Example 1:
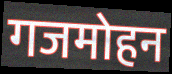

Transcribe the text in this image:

गजमोहन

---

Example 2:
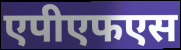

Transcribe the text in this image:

एपीएफएस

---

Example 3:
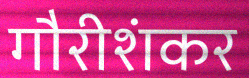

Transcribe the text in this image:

गौरीशंकर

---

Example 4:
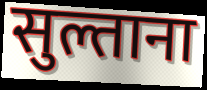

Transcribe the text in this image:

सुल्ताना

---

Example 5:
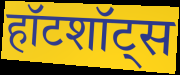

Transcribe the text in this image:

हॉटशॉट्स